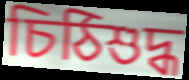
চিঠিশুদ্ধ